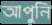
আপুনি